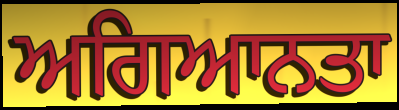
ਅਗਿਆਨਤਾ